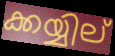
ക്കയ്യില്